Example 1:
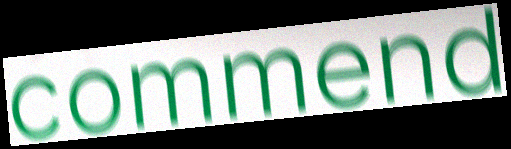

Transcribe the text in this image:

commend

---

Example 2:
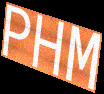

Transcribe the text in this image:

PHM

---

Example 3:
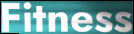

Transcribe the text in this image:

Fitness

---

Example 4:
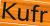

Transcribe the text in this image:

Kufr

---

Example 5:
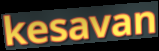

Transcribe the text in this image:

kesavan